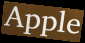
Apple